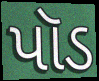
પૉડ